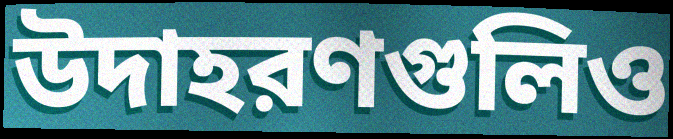
উদাহরণগুলিও